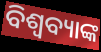
ବିଶ୍ୱବ୍ୟାଙ୍କ